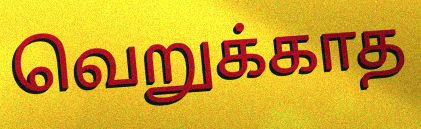
வெறுக்காத